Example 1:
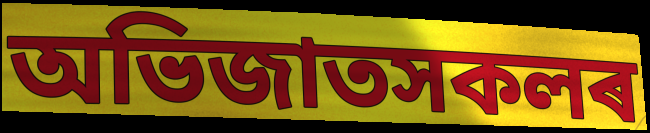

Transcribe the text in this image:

অভিজাতসকলৰ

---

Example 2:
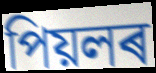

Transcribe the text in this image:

পিয়লৰ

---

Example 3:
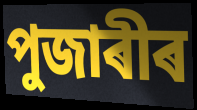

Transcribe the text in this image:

পুজাৰীৰ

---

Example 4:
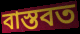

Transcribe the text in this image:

বাস্তবত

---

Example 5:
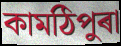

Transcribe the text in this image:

কামঠিপুৰা